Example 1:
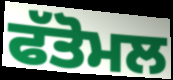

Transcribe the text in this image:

ਫੱਤੋਮਲ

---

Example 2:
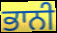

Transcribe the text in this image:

ਭਾਨੀ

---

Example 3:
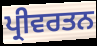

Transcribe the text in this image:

ਪ੍ਰੀਵਰਤਨ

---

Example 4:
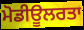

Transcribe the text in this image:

ਮੋਡੀਊਲਰਤਾ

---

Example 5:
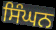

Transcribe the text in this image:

ਸਿੰਘਨ